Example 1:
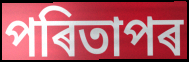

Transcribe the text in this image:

পৰিতাপৰ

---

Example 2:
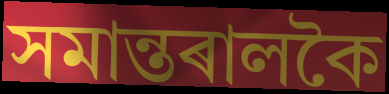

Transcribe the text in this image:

সমান্তৰালকৈ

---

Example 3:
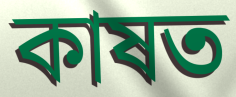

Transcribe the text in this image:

কাষত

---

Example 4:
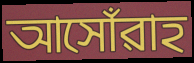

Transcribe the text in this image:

আসোঁৱাহ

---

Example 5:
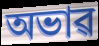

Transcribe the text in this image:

অভাৱ